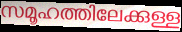
സമൂഹത്തിലേക്കുള്ള